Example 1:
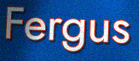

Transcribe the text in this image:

Fergus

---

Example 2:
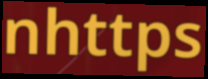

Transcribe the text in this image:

nhttps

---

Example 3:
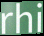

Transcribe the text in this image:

rhi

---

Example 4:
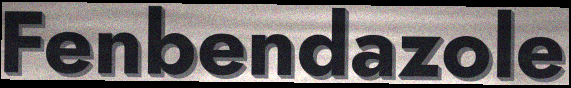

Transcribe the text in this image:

Fenbendazole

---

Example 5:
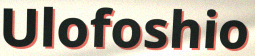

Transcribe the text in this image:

Ulofoshio